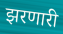
झरणारी